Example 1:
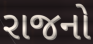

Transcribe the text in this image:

રાજનો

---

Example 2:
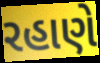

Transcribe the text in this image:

રહાણે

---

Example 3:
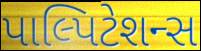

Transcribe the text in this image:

પાલ્પિટેશન્સ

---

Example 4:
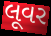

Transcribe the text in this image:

લૂવર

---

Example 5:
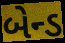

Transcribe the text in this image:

બેન્ડ